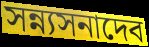
সন্ন্যসনাদেব